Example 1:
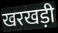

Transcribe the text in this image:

खरखड़ी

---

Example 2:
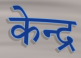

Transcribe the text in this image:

केन्द्र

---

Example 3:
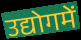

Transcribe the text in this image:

उद्योगमें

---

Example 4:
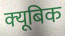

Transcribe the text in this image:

क्‍यूबिक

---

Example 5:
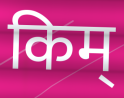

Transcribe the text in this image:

किम्